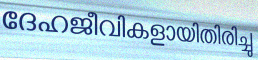
ദേഹജീവികളായിതിരിച്ചു